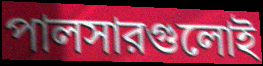
পালসারগুলোই